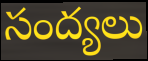
సంద్యలు